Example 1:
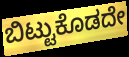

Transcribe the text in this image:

ಬಿಟ್ಟುಕೊಡದೇ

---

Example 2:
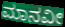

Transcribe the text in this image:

ಮಾನವೀ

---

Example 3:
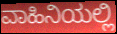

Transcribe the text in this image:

ವಾಹಿನಿಯಲ್ಲಿ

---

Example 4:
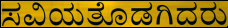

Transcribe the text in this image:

ಸವಿಯತೊಡಗಿದರು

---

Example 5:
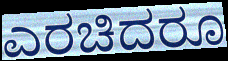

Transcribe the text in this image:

ಎರಚಿದರೂ